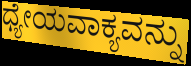
ಧ್ಯೇಯವಾಕ್ಯವನ್ನು